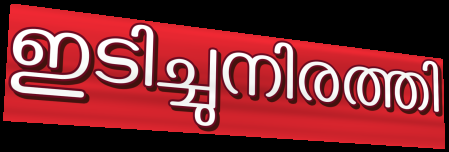
ഇടിച്ചുനിരത്തി